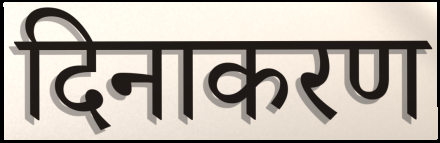
दिनाकरण